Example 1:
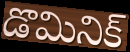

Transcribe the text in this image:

డొమినిక్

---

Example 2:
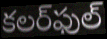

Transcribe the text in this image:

కలర్‌ఫుల్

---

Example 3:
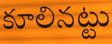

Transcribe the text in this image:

కూలినట్టు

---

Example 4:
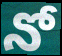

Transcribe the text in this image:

నో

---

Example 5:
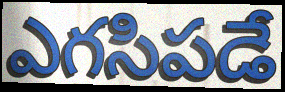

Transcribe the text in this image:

ఎగసిపడే